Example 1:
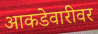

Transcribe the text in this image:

आकडेवारीवर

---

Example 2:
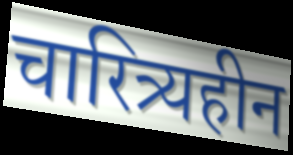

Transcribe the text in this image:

चारित्र्यहीन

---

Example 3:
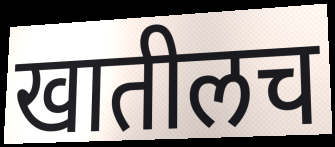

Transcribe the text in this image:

खातीलच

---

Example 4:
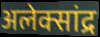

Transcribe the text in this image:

अलेक्सांद्र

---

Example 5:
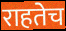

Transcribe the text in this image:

राहतेच